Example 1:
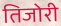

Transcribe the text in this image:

तिजोरी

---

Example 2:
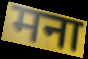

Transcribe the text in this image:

मना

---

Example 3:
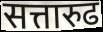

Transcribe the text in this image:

सत्तारुढ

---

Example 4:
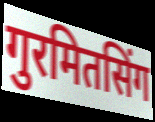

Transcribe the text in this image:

गुरमितसिंग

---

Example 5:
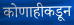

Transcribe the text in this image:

कोणाहीकडून